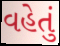
વહેતું